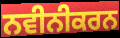
ਨਵੀਨੀਕਰਨ